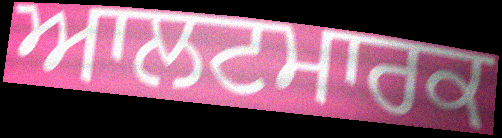
ਆਲਟਮਾਰਕ